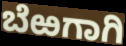
ಬೆಱಗಾಗಿ